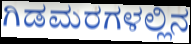
ಗಿಡಮರಗಳಲ್ಲಿನ